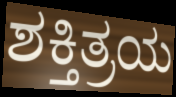
ಶಕ್ತಿತ್ರಯ